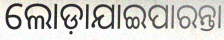
ଲୋଡ଼ାଯାଇପାରନ୍ତା